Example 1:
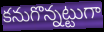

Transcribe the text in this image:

కనుగొన్నట్టుగా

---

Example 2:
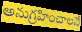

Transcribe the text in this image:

అనుగ్రహించాలనే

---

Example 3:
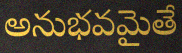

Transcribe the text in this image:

అనుభవమైతే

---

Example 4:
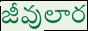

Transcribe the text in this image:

జీవులార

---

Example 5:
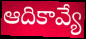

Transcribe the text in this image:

ఆదికావ్యే